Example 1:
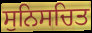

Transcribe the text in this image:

ਸੁਨਿਸਚਿਤ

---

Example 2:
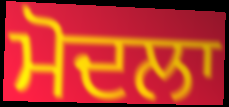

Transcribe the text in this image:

ਮੋਦਲਾ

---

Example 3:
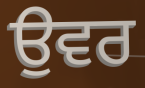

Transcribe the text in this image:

ਉਵਰ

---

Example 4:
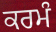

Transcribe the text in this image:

ਕਰਮੰ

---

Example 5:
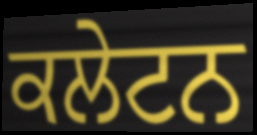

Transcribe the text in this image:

ਕਲੇਟਨ